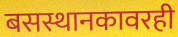
बसस्थानकावरही